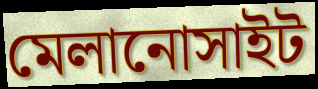
মেলানোসাইট